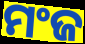
ମଂଜ